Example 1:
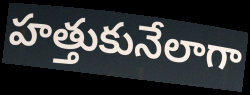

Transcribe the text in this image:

హత్తుకునేలాగా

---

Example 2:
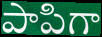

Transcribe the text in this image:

పాపిగా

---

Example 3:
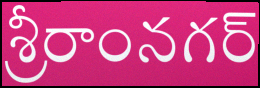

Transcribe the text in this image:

శ్రీరాంనగర్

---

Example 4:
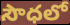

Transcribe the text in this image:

సౌధలో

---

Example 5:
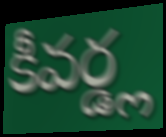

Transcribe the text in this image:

కీవర్డ్ల